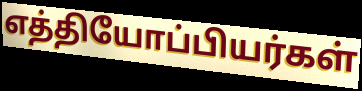
எத்தியோப்பியர்கள்